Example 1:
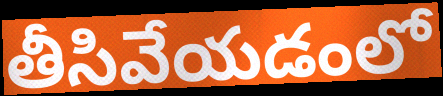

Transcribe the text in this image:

తీసివేయడంలో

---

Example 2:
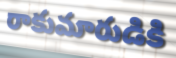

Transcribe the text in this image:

రాకుమారుడికి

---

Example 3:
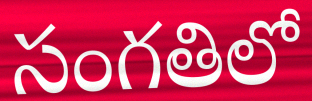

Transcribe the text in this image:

సంగతిలో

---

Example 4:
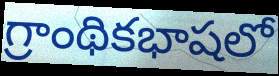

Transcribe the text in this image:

గ్రాంథికభాషలో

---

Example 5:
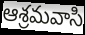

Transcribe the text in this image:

ఆశ్రమవాసి